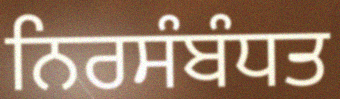
ਨਿਰਸੰਬੰਧਤ